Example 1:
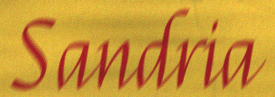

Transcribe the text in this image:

Sandria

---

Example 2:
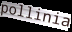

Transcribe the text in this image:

pollinia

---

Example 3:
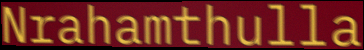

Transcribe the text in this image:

Nrahamthulla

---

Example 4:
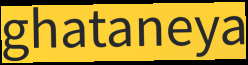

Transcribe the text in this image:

ghataneya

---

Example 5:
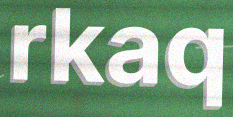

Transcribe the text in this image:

rkaq